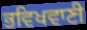
ਭਵਿਖਵਾਣੀ